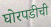
घोरपडीची